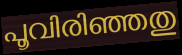
പൂവിരിഞ്ഞതു